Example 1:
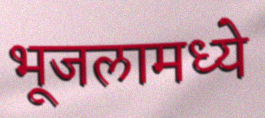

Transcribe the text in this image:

भूजलामध्ये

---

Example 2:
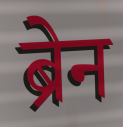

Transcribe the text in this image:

ब्रेन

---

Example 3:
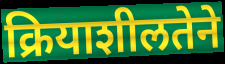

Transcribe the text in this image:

क्रियाशीलतेने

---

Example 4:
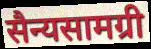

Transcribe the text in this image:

सैन्यसामग्री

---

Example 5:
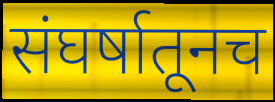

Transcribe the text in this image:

संघर्षातूनच